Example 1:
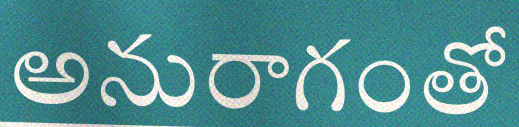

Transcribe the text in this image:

అనురాగంతో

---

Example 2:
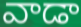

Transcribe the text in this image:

వాడా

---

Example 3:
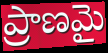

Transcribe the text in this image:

ప్రాణమై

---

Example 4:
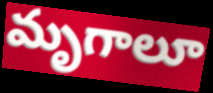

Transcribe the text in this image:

మృగాలూ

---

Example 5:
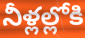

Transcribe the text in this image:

నీళ్లల్లోకి